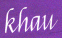
khau